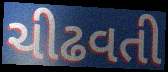
ચીઢવતી